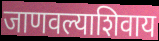
जाणवल्याशिवाय